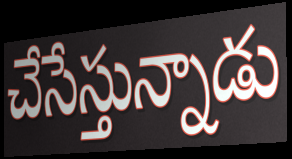
చేసేస్తున్నాడు